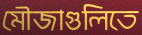
মৌজাগুলিতে